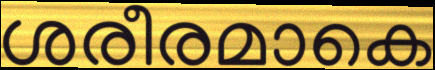
ശരീരമാകെ